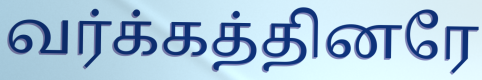
வர்க்கத்தினரே